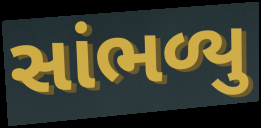
સાંભળ્યુ